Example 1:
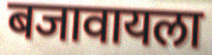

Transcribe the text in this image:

बजावायला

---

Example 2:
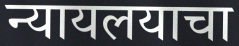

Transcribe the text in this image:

न्यायलयाचा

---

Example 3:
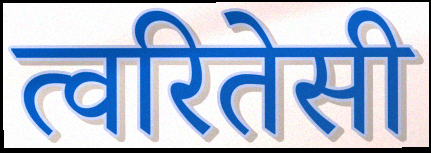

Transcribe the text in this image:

त्वरितेसी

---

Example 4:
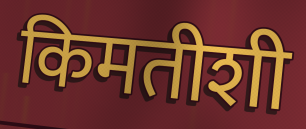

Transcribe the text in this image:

किमतीशी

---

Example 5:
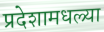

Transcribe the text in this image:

प्रदेशामधल्या